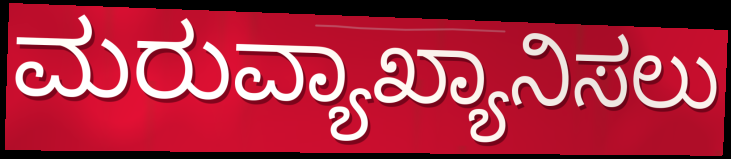
ಮರುವ್ಯಾಖ್ಯಾನಿಸಲು